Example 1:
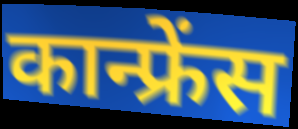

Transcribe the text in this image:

कान्फ्रेंस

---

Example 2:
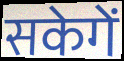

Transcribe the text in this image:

सकेगें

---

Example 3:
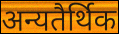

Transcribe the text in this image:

अन्यतैर्थिक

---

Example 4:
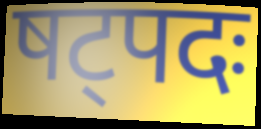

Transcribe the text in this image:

षट्पदः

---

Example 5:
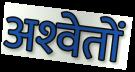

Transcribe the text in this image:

अश्‍वेतों